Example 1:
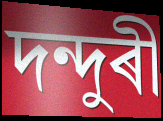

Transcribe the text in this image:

দন্দুৰী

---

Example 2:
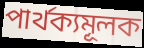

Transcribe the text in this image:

পাৰ্থক্যমূলক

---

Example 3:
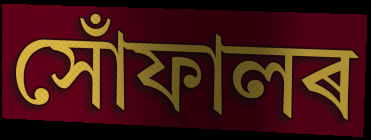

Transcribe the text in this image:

সোঁফালৰ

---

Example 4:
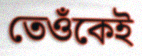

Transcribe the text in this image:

তেওঁকেই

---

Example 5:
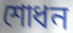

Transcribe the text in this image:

শোধন